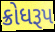
ક્રોધરૂપ